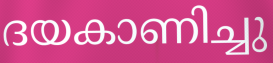
ദയകാണിച്ചു